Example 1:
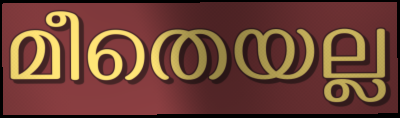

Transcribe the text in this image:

മീതെയല്ല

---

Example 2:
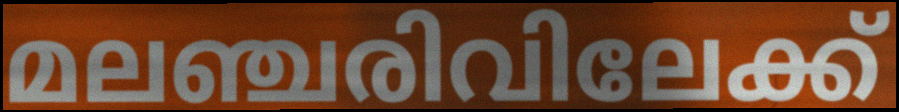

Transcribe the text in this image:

മലഞ്ചരിവിലേക്ക്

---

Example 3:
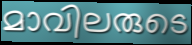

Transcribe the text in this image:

മാവിലരുടെ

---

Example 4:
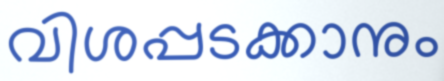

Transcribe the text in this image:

വിശപ്പടക്കാനും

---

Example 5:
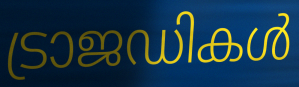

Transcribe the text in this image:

ട്രാജഡികൾ